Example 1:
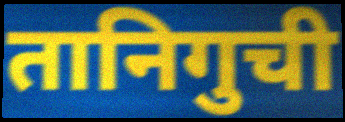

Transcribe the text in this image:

तानिगुची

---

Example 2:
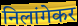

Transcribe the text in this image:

निलांगेकर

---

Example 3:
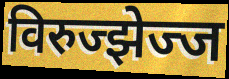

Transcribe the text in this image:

विरुज्झेज्ज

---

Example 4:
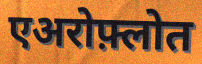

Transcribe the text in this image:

एअरोफ़्लोत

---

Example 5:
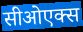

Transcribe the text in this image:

सीओएक्स